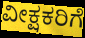
ವೀಕ್ಷಕರಿಗೆ